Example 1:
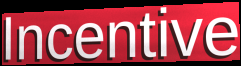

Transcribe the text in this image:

Incentive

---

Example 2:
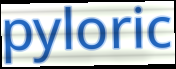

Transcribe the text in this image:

pyloric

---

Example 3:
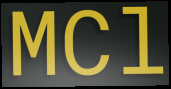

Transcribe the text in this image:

MCl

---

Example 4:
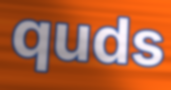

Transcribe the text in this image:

quds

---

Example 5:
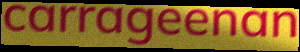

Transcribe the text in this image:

carrageenan